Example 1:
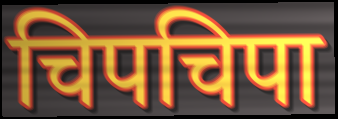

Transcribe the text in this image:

चिपचिपा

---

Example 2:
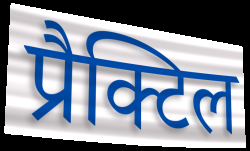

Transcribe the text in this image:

प्रैक्टिल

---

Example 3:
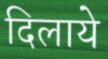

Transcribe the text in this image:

दिलाये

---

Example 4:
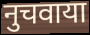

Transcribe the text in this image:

नुचवाया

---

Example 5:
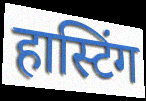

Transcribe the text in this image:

हास्टिंग